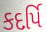
કદર્પિ